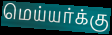
மெய்யர்க்கு